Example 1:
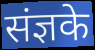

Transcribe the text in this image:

संज्ञके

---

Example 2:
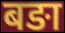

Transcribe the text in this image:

बङा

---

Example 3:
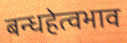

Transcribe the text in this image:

बन्धहेत्वभाव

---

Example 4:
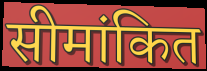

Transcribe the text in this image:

सीमांकित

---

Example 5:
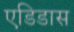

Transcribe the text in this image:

एडिडास